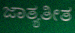
ಜಾತ್ಯತೀತ